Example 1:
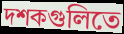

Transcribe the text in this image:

দশকগুলিতে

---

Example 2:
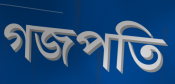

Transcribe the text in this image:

গজপতি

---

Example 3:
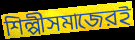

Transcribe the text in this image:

শিল্পীসমাজেরই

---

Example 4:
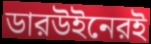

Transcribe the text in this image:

ডারউইনেরই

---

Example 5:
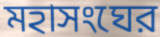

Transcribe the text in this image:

মহাসংঘের